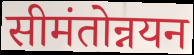
सीमंतोन्नयन